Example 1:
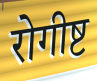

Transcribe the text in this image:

रोगीष्ट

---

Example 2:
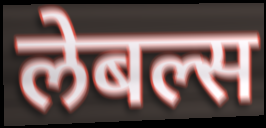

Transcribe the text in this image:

लेबल्स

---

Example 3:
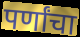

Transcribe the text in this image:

पर्णांचा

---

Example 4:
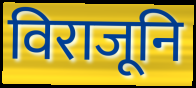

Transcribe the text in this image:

विराजूनि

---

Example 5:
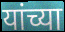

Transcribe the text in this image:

यांच्या